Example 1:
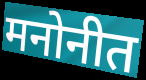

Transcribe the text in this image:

मनोनीत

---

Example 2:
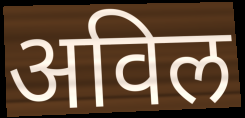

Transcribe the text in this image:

अविल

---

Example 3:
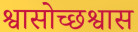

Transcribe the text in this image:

श्वासोच्छश्वास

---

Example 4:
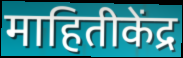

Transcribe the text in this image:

माहितीकेंद्र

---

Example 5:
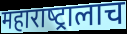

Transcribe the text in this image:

महाराष्ट्रालाच